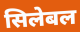
सिलेबल